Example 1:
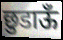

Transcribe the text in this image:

छुडाऊँ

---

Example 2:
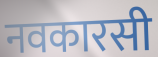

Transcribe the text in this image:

नवकारसी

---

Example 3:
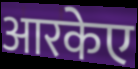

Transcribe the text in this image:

आरकेए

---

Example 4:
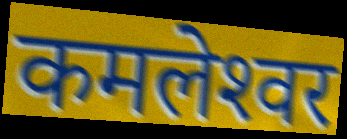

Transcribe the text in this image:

कमलेश्‍वर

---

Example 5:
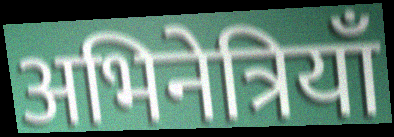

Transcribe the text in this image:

अभिनेत्रियाँ